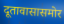
दूतावासासमोर